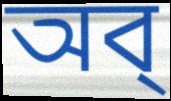
অব্